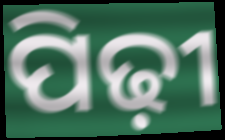
ପିଢ଼ୀ